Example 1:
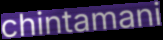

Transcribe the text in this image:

chintamani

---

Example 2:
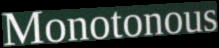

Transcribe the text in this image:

Monotonous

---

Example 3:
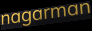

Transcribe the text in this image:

nagarman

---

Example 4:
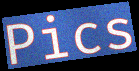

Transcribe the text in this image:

Pics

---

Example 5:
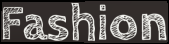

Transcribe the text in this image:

Fashion